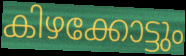
കിഴക്കോട്ടും